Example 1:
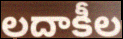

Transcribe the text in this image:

లదాకీల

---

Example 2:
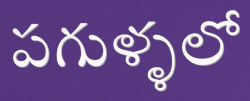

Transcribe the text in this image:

పగుళ్ళలో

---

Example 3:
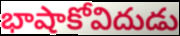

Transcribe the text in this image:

భాషాకోవిదుడు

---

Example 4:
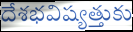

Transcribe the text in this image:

దేశభవిష్యత్తుకు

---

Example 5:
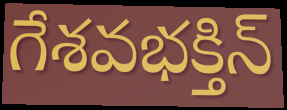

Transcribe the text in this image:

గేశవభక్తిన్